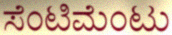
ಸೆಂಟಿಮೆಂಟು